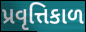
પ્રવૃત્તિકાળ